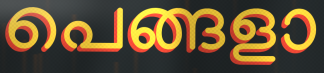
പെങ്ങളാ